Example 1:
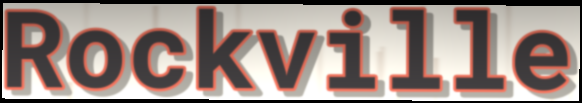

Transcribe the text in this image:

Rockville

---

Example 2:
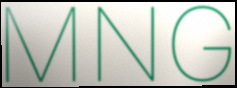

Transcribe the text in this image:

MNG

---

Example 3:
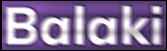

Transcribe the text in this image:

Balaki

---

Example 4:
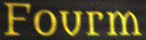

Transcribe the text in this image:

Fourm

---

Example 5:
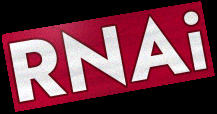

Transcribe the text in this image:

RNAi